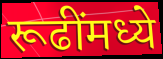
रूढींमध्ये